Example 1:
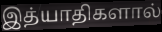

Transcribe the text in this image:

இத்யாதிகளால்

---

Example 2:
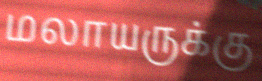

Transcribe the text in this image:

மலாயருக்கு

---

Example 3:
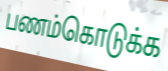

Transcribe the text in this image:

பணம்கொடுக்க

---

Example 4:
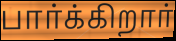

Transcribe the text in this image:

பார்க்கிறார்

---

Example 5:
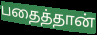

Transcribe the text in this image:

பதைத்தான்